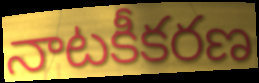
నాటకీకరణ